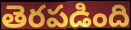
తెరపడింది